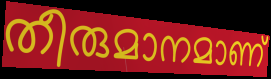
തീരുമാനമാണ്